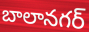
బాలానగర్